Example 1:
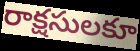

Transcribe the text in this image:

రాక్షసులకూ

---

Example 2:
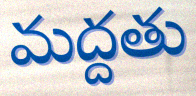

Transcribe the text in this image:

మద్దతు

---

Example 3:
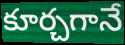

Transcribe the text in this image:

కూర్చగానే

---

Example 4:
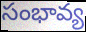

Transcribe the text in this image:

సంభావ్య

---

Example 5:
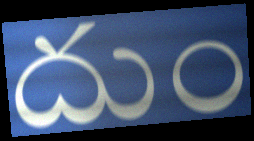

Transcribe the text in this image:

దుం